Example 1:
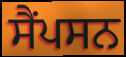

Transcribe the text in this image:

ਸੈਂਪਸਨ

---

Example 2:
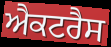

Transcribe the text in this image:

ਐਕਟਰੈਸ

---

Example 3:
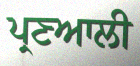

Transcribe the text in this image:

ਪ੍ਰਣਆਲੀ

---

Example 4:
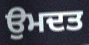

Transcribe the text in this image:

ਉਮਦਤ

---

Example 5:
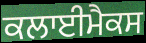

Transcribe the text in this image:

ਕਲਾਈਮੈਕਸ